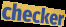
checker